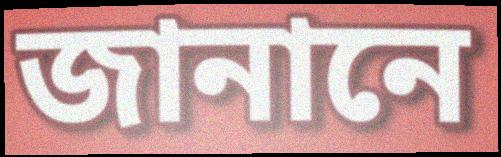
জানানে